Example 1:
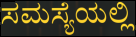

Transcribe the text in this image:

ಸಮಸ್ಯೆಯಲ್ಲಿ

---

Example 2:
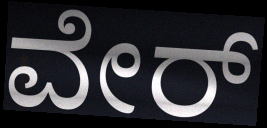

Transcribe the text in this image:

ವೇರ್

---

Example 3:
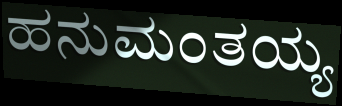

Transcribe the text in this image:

ಹನುಮಂತಯ್ಯ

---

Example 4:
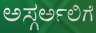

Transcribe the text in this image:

ಅಸ್ಗರ್ಅಲಿಗೆ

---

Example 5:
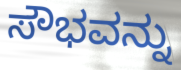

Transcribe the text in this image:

ಸೌಭವನ್ನು